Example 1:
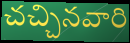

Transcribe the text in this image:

చచ్చినవారి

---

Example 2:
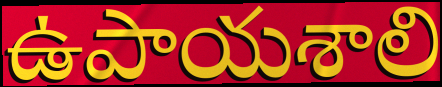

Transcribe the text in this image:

ఉపాయశాలి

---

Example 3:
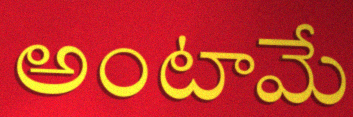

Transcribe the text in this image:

అంటామే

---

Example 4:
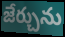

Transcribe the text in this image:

జేర్చును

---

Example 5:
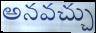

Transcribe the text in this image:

అనవచ్చు